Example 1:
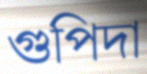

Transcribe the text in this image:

গুপিদা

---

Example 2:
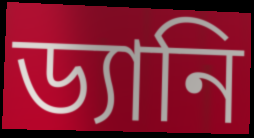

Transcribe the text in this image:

ড্যানি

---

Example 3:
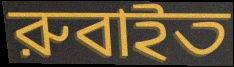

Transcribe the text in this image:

রুবাইত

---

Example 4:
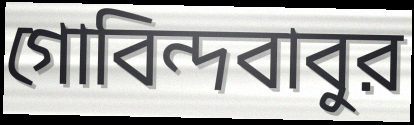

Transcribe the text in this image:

গোবিন্দবাবুর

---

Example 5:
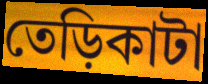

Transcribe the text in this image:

তেড়িকাটা